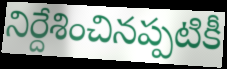
నిర్దేశించినప్పటికీ